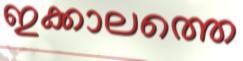
ഇക്കാലത്തെ